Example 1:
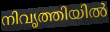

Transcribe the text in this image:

നിവൃത്തിയിൽ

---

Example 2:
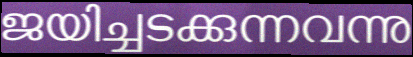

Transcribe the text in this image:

ജയിച്ചടക്കുന്നവന്നു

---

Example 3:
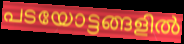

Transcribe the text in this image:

പടയോട്ടങ്ങളിൽ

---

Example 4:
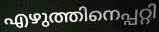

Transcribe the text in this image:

എഴുത്തിനെപ്പറ്റി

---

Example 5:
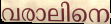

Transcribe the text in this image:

വരാലിനെ